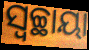
ସ୍ୱଚ୍ଛାୟା